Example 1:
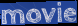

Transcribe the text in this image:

movie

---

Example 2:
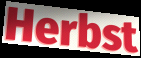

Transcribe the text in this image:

Herbst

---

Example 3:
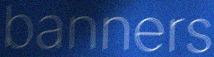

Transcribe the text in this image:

banners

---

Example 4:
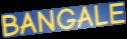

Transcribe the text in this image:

BANGALE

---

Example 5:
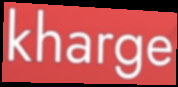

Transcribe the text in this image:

kharge